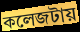
কলেজটায়